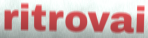
ritrovai